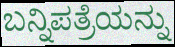
ಬನ್ನಿಪತ್ರೆಯನ್ನು